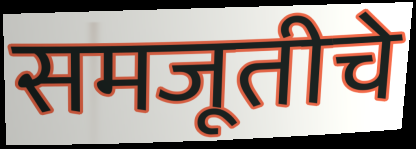
समजूतीचे